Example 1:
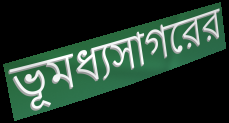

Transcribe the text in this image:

ভূমধ্যসাগরের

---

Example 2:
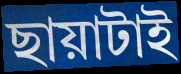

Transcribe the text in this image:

ছায়াটাই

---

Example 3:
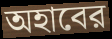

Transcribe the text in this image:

অহাবের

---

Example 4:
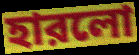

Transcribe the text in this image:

হারলো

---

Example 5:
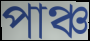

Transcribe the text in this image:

পাঞ্চ